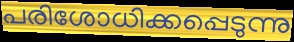
പരിശോധിക്കപ്പെടുന്നു